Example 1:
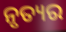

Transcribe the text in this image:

ନୃତ୍ୟର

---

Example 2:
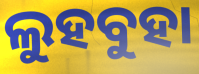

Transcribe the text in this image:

ଲୁହବୁହା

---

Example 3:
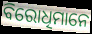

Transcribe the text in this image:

ବିରୋଧିମାନେ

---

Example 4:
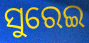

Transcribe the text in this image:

ସୁରେଇ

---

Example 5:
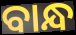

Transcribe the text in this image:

ବାନ୍ଧ